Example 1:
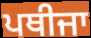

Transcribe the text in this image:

ਪਥੀਜਾ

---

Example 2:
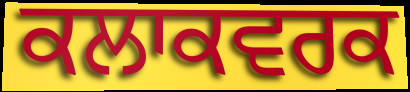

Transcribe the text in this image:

ਕਲਾਕਵਰਕ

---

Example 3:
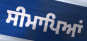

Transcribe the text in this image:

ਸੀਮਾਪਿਆਂ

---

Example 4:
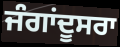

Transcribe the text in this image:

ਜੰਗਾਂਦੂਸਰਾ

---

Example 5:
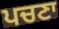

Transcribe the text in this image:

ਪਚਣਾ